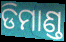
ଡିମାଣ୍ଡ